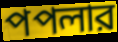
পপলার